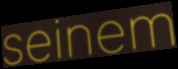
seinem